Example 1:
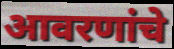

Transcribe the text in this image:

आवरणांचे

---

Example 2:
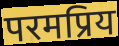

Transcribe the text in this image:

परमप्रिय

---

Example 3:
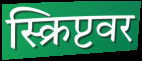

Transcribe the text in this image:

स्क्रिप्टवर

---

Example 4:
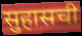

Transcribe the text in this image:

सुहासची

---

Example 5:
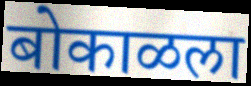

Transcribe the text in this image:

बोकाळला